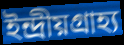
ইন্দ্রীয়গ্রাহ্য